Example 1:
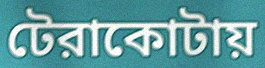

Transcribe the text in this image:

টেরাকোটায়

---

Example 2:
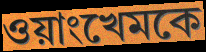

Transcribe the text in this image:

ওয়াংখেমকে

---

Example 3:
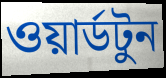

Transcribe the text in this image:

ওয়ার্ডটুন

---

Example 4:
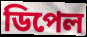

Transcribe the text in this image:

ডিপেল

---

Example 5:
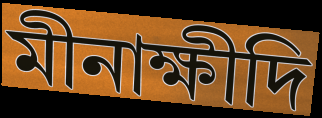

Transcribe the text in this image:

মীনাক্ষীদি